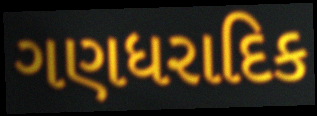
ગણધરાદિક